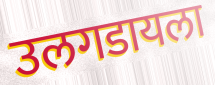
उलगडायला